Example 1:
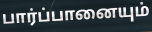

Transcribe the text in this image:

பார்ப்பானையும்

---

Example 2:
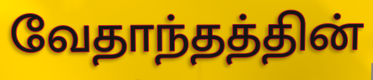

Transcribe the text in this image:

வேதாந்தத்தின்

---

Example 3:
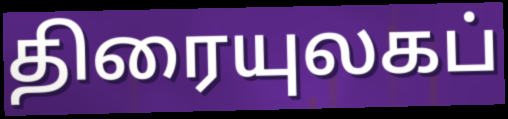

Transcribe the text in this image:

திரையுலகப்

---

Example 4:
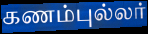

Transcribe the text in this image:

கணம்புல்லர்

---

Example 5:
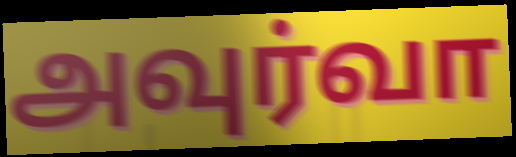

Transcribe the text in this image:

அவுர்வா